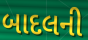
બાદલની